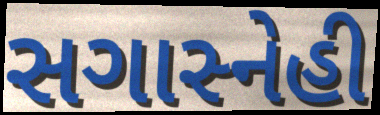
સગાસ્નેહી